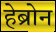
हेब्रोन